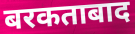
बरकताबाद